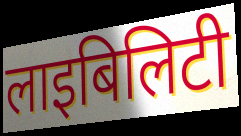
लाइबिलिटी